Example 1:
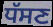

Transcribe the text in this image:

ਧੱਸਣ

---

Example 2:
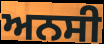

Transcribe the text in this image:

ਅਨਸੀ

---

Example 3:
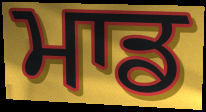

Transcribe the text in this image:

ਮਾਡ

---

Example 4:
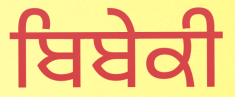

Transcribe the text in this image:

ਬਿਬੇਕੀ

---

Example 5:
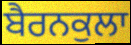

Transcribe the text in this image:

ਬੈਰਨਕੁਲਾ